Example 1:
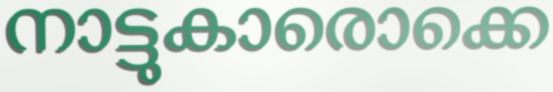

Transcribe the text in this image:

നാട്ടുകാരൊക്കെ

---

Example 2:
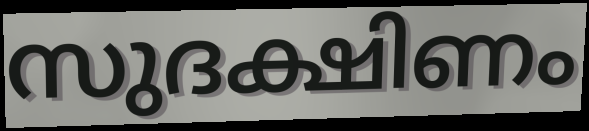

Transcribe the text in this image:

സുദക്ഷിണം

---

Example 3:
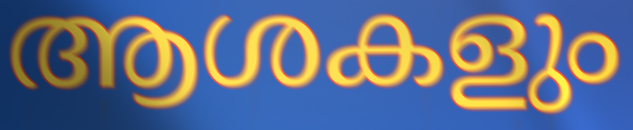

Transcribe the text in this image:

ആശകളും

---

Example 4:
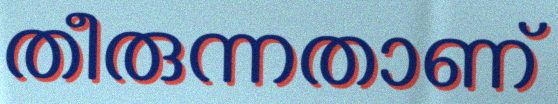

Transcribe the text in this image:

തീരുന്നതാണ്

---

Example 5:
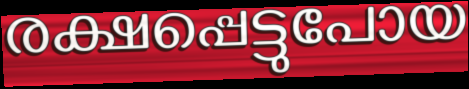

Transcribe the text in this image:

രക്ഷപ്പെട്ടുപോയ